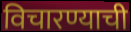
विचारण्याची